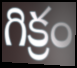
గిక్రం